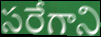
సరేగాని